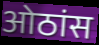
ओठांस